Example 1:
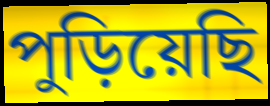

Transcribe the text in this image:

পুড়িয়েছি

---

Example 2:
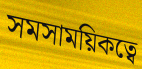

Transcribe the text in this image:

সমসাময়িকত্বে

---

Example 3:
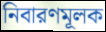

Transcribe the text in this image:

নিবারণমূলক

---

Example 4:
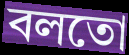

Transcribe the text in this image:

বলতো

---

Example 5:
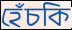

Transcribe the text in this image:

হেঁচকি